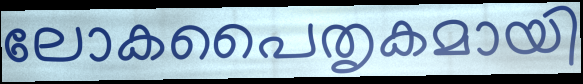
ലോകപൈതൃകമായി